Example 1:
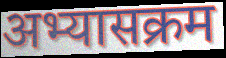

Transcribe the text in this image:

अभ्यासक्रम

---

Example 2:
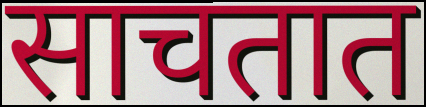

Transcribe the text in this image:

साचतात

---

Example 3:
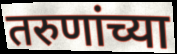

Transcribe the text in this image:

तरुणांच्या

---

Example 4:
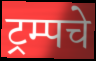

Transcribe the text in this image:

ट्रम्पचे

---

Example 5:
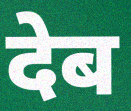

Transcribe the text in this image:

देब